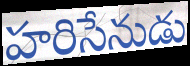
హరిసేనుడు